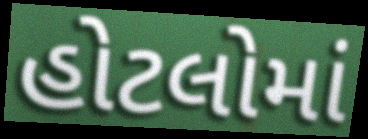
હોટલોમાં